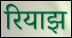
रियाझ